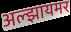
अल्झायमर